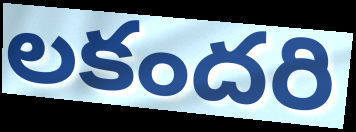
లకందరి